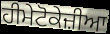
ਹੀਮੇਟੋਕੇਜ਼ੀਆ